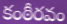
కంఠీరవం